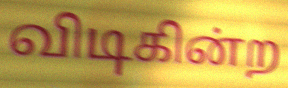
விடிகின்ற